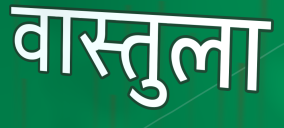
वास्तुला